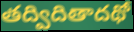
తద్విదితాదథో